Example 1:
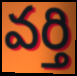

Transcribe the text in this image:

వర్తి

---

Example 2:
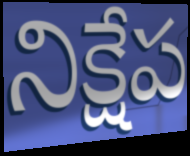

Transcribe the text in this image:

నిక్షేప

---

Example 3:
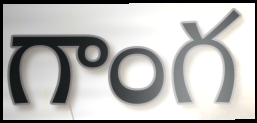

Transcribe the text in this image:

గాంగ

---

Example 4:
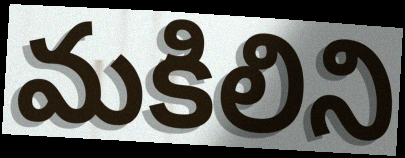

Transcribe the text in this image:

మకిలిని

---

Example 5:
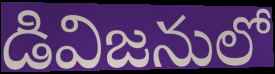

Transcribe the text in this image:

డివిజనులో